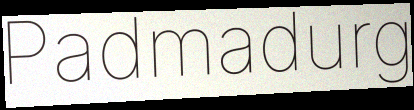
Padmadurg